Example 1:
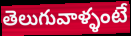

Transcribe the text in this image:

తెలుగువాళ్ళంటే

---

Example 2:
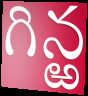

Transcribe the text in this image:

గిన్ఱ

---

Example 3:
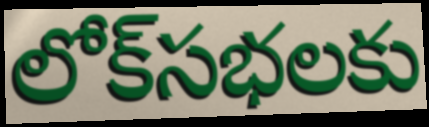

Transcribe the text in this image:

లోక్‌సభలకు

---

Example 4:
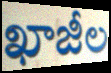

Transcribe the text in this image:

ఖాజీల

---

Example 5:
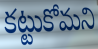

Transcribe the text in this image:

కట్టుకోమని